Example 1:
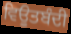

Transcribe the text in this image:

ਵਿਊਤਬੰਦੀ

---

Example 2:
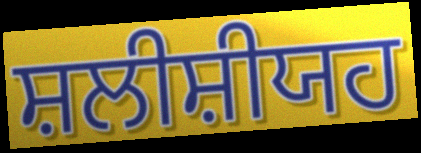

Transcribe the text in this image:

ਸ਼ਲੀਸ਼ੀਯਹ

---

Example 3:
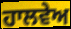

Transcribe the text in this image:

ਹਾਲਵੇਅ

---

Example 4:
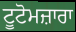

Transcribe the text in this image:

ਟੂਟੋਮਜ਼ਾਰਾ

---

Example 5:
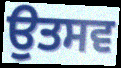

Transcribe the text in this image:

ਉਤਸਵ